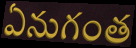
ఏనుగంత